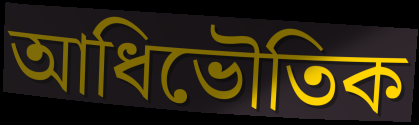
আধিভৌতিক